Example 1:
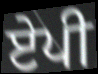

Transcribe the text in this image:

ਏਪੀ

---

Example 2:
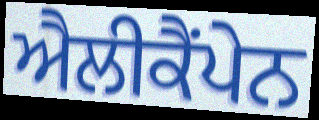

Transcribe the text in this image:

ਐਲੀਕੈਂਪੇਨ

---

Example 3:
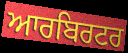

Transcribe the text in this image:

ਆਰਬਿਰਟਰ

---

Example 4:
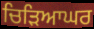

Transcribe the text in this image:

ਚਿੜਿਆਘਰ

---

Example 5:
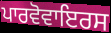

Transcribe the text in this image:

ਪਾਰਵੋਵਾਇਰਸ